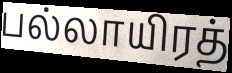
பல்லாயிரத்